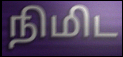
நிமிட